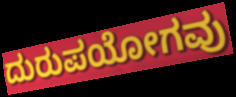
ದುರುಪಯೋಗವು